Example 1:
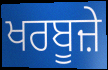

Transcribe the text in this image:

ਖਰਬੂਜ਼ੇ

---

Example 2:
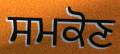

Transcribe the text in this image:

ਸਮਕੋਣ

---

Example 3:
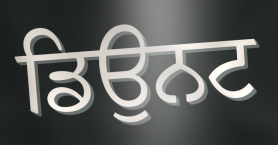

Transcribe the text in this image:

ਡਿਉਨਟ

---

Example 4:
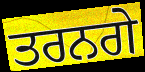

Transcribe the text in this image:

ਤਰਨਗੇ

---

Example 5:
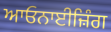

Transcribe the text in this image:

ਆਓਨਾਈਜ਼ਿੰਗ